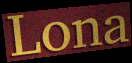
Lona